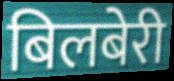
बिलबेरी